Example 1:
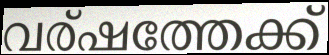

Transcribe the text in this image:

വര്ഷത്തേക്ക്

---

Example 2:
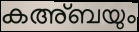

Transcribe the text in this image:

കഅ്ബയും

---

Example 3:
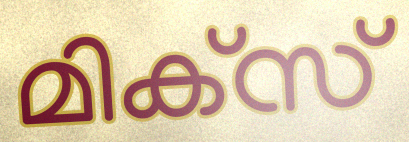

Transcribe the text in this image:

മിക്‌സ്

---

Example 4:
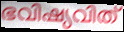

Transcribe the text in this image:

ഭവിഷ്യവിത്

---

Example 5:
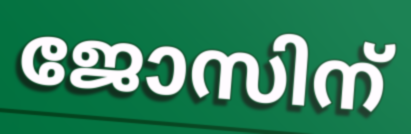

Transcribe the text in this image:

ജോസിന്